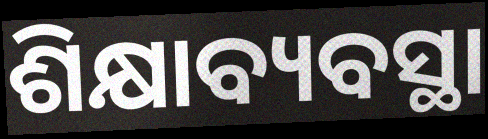
ଶିକ୍ଷାବ୍ୟବସ୍ଥା